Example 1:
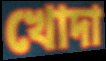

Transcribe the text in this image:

খোদা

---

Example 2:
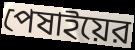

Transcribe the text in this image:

পেষাইয়ের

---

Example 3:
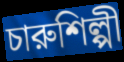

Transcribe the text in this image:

চারুশিল্পী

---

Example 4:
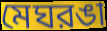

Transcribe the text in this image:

মেঘরঙা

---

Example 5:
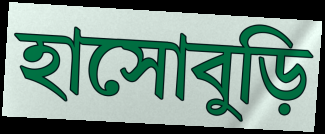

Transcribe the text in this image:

হাসোবুড়ি